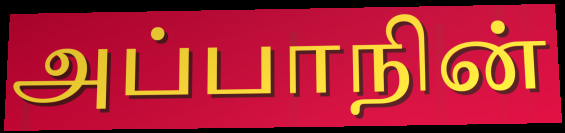
அப்பாநின்